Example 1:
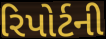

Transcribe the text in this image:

રિપોર્ટની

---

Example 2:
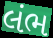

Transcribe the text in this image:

લંભ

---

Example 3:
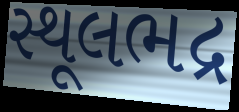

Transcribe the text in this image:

સ્થૂલભદ્ર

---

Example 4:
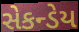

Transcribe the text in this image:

સેકન્ડેય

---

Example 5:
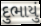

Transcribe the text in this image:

દુભાયું